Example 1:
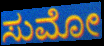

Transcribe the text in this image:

ಸುಮೋ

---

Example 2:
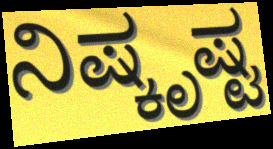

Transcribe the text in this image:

ನಿಷ್ಕೃಷ್ಟ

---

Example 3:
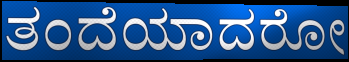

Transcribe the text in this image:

ತಂದೆಯಾದರೋ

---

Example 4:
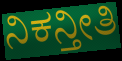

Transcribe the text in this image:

ನಿಕನ್ತೀತಿ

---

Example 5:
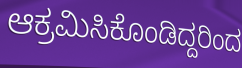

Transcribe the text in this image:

ಆಕ್ರಮಿಸಿಕೊಂಡಿದ್ದರಿಂದ